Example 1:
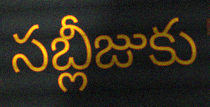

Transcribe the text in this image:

సబ్లీజుకు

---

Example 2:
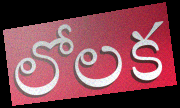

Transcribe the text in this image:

లోలక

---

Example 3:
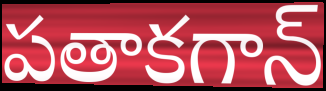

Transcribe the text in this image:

పతాకగాన్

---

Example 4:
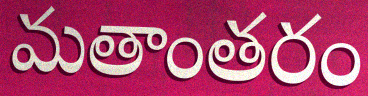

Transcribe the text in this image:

మతాంతరం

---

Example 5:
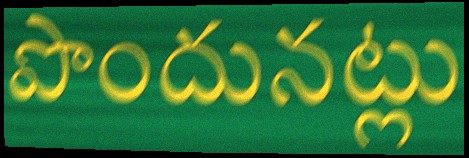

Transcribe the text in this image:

పొందునట్లు